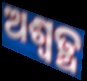
ଅଶ୍ଵତ୍ଥ